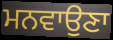
ਮਨਵਾਉਣਾ